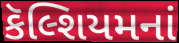
કૅલ્શિયમનાં